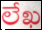
లేఖ